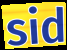
sid